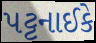
પટ્ટનાઈકે